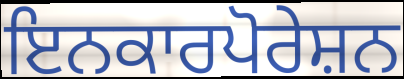
ਇਨਕਾਰਪੋਰੇਸ਼ਨ